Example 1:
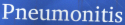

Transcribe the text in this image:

Pneumonitis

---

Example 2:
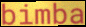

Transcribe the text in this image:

bimba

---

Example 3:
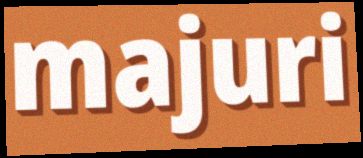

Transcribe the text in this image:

majuri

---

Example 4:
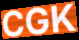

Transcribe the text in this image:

CGK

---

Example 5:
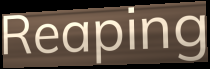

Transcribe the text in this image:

Reaping